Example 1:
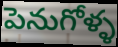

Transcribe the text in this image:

పెనుగోళ్ళ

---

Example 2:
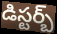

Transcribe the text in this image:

డిస్టర్బ్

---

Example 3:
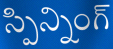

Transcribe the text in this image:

స్పిన్నింగ్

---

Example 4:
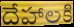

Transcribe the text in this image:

దేహాలకి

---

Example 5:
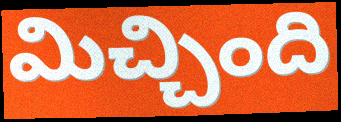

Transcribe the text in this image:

మిచ్చింది